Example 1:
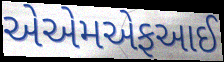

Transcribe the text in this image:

એએમએફઆઈ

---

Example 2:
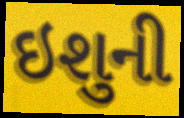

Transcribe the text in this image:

ઇશુની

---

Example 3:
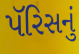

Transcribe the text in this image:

પૅરિસનું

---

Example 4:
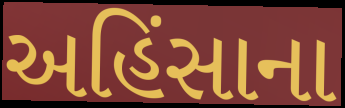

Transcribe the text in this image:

અહિંસાના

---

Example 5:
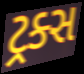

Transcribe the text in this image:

ટ્રક્સ